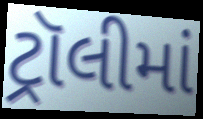
ટ્રૉલીમાં